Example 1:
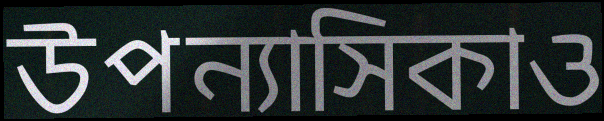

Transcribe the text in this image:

উপন্যাসিকাও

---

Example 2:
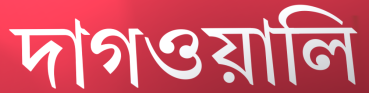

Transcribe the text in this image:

দাগওয়ালি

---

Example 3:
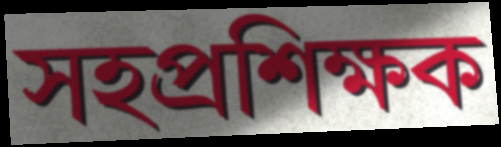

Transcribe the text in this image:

সহপ্রশিক্ষক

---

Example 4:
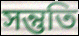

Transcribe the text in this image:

সন্তুতি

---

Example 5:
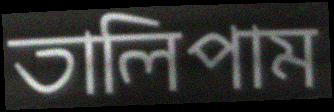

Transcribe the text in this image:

তালিপাম